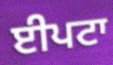
ਈਪਟਾ